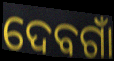
ଦେବଗାଁ